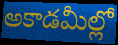
అకాడమీల్లో